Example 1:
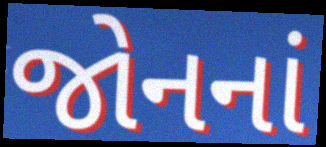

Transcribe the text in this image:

જોનનાં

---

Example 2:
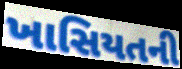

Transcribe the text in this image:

ખાસિયતની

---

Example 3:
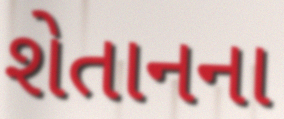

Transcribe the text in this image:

શેતાનના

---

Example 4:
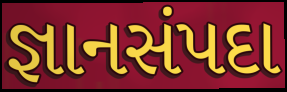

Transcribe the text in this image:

જ્ઞાનસંપદા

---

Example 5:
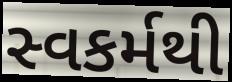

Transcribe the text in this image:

સ્વકર્મથી